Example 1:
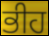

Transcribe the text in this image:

ਭੀਹ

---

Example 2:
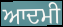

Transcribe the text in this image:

ਆਦਮੀ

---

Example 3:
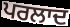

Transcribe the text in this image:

ਪਰਲਾਦ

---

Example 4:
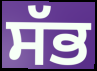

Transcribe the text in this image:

ਸੱਭ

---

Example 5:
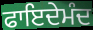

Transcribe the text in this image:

ਫਾਇਦੇਮੰਦ